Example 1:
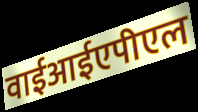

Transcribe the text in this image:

वाईआईएपीएल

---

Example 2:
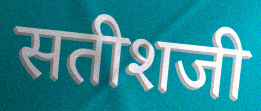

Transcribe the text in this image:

सतीशजी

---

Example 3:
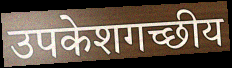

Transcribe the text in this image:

उपकेशगच्छीय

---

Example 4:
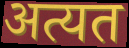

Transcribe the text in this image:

अत्यत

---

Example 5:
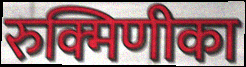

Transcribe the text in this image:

रुक्मिणीका